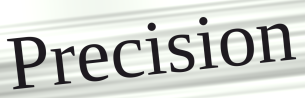
Precision